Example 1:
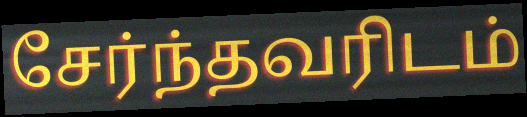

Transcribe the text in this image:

சேர்ந்தவரிடம்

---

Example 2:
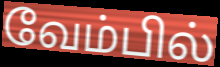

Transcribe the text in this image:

வேம்பில்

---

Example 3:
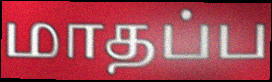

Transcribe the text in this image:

மாதப்ப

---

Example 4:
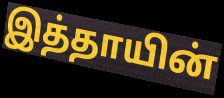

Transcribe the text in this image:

இத்தாயின்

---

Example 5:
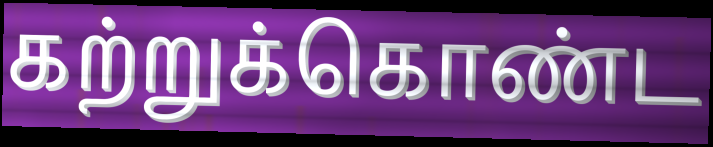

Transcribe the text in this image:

கற்றுக்கொண்ட